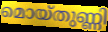
മൊയ്തുണ്ണി